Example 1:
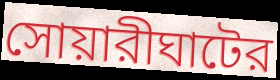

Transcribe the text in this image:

সোয়ারীঘাটের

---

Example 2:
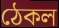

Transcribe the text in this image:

ঠেকল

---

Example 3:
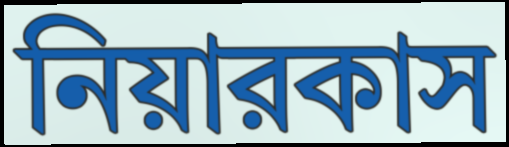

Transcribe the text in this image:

নিয়ারকাস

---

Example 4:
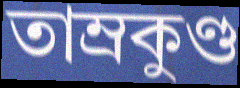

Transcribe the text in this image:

তাম্রকুণ্ড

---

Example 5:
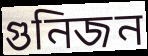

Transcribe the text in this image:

গুনিজন